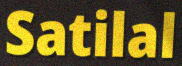
Satilal